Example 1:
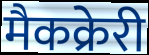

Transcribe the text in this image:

मैकक्रेरी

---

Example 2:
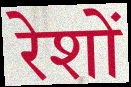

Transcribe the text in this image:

रेशों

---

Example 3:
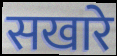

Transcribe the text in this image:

सखारे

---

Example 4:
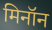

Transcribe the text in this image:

मिनॉन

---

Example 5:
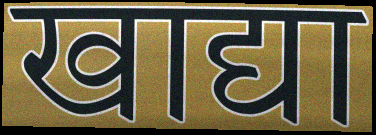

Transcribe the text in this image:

खाद्या